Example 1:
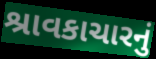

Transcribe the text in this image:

શ્રાવકાચારનું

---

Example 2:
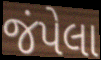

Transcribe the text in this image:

જંપેલા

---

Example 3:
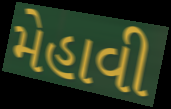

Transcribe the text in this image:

મેહાવી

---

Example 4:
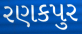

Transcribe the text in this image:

રણકપુર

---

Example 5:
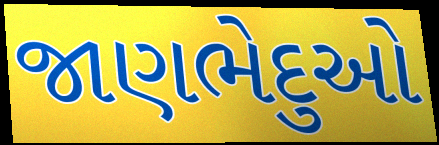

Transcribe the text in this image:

જાણભેદુઓ